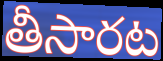
తీసారట